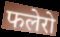
फलेरो